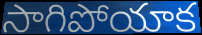
సాగిపోయాక